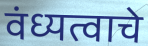
वंध्यत्वाचे